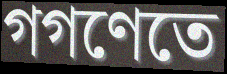
গগণেতে